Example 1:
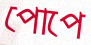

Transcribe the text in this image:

পোপে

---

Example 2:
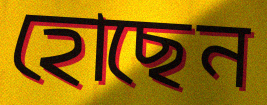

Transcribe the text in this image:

হোছেন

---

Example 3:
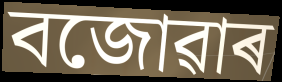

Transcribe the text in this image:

বজোৱাৰ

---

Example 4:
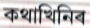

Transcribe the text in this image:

কথাখিনিৰ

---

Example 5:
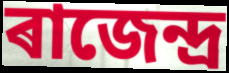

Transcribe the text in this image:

ৰাজেন্দ্ৰ